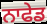
ਨਾਫੇਡ